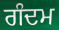
ਗੰਦਮ